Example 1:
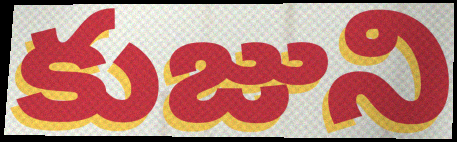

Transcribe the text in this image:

కుజుని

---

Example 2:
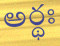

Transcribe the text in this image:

అర్థః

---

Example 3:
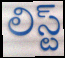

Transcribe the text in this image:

లిస్ట్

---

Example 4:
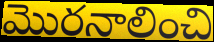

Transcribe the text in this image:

మొరనాలించి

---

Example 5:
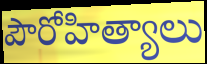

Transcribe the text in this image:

పౌరోహిత్యాలు